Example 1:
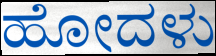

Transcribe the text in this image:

ಹೋದಳು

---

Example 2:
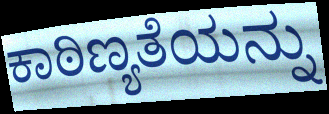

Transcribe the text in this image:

ಕಾಠಿಣ್ಯತೆಯನ್ನು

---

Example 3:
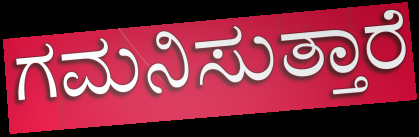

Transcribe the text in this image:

ಗಮನಿಸುತ್ತಾರೆ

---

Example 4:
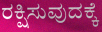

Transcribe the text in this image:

ರಕ್ಷಿಸುವುದಕ್ಕೆ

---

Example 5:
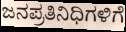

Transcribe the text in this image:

ಜನಪ್ರತಿನಿಧಿಗಳಿಗೆ